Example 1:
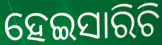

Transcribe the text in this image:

ହେଇସାରିଚି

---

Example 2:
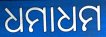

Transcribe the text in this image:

ଧମାଧମ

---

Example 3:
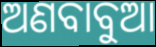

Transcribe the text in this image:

ଅଣବାବୁଆ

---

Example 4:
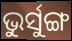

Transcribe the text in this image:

ଭୁର୍ସୁଙ୍ଗ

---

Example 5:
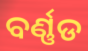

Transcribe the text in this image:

ବର୍ଣ୍ଣଡ